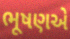
ભૂષણએ